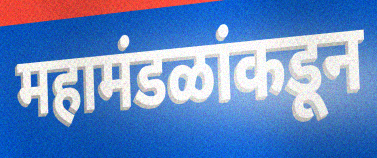
महामंडळांकडून